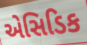
એસિડિક